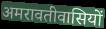
अमरावतीवासियों